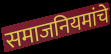
समाजनियमांचे